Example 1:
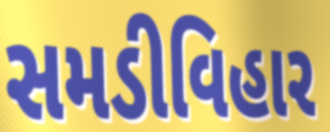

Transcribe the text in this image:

સમડીવિહાર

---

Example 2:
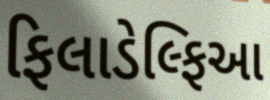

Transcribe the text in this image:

ફિલાડેલ્ફિઆ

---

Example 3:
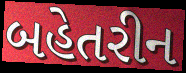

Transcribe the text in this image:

બહેતરીન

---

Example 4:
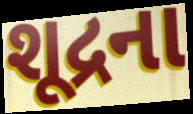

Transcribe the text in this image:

શૂદ્રના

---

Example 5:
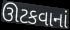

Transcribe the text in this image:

ઊટકવાનાં